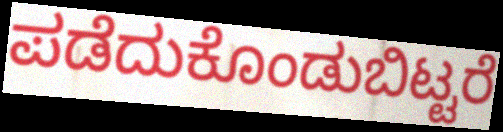
ಪಡೆದುಕೊಂಡುಬಿಟ್ಟರೆ